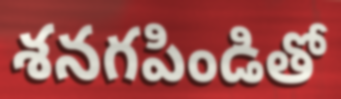
శనగపిండితో